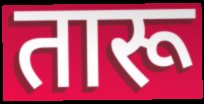
तारू